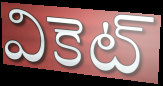
వికెట్